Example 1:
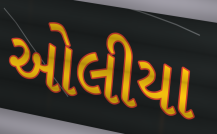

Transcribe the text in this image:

ઓલીયા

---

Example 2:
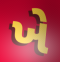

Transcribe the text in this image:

ખે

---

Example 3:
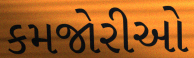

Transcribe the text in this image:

કમજોરીઓ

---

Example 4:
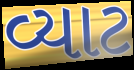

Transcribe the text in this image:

વ્યાટ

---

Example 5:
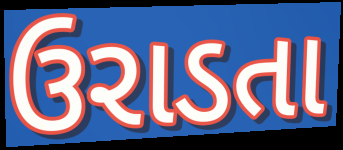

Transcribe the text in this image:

ઉરાડતા